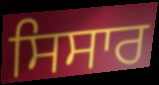
ਸਿਸਾਰ